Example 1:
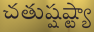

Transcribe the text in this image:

చతుష్షష్ట్యా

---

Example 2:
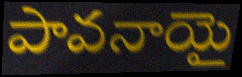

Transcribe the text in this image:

పావనాయై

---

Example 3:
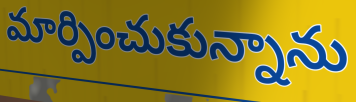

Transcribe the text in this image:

మార్పించుకున్నాను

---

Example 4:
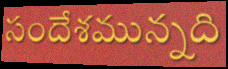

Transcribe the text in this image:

సందేశమున్నది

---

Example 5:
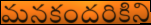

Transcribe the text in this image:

మనకందరికిని